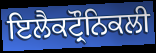
ਇਲੈਕਟ੍ਰੌਨਿਕਲੀ